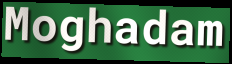
Moghadam